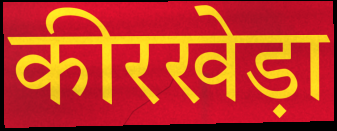
कीरखेड़ा